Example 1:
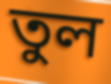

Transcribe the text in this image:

তুল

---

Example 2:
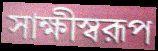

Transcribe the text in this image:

সাক্ষীস্বরূপ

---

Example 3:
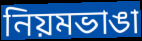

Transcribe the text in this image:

নিয়মভাঙা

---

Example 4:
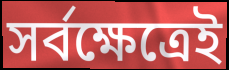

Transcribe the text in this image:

সর্বক্ষেত্রেই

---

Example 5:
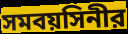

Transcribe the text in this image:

সমবয়সিনীর